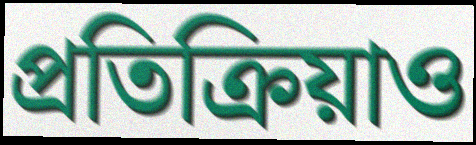
প্রতিক্রিয়াও